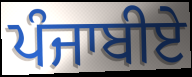
ਪੰਜਾਬੀਏ